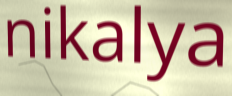
nikalya